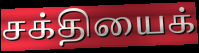
சக்தியைக்